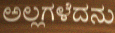
ಅಲ್ಲಗಳೆದನು